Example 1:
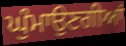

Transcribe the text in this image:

ਘੁੰਮਾਉਣਗੀਆਂ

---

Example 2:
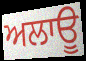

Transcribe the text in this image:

ਅਲਾਊ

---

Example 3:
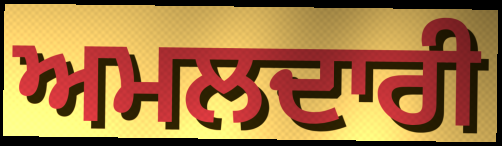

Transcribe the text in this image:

ਅਮਲਦਾਰੀ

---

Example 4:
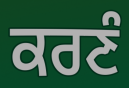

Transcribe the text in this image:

ਕਰਣੰ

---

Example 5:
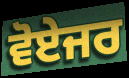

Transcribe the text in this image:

ਵੋਏਜਰ